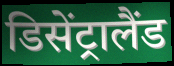
डिसेंट्रालैंड